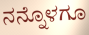
ನನ್ನೊಳಗೂ